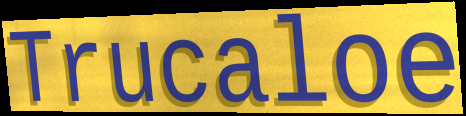
Trucaloe